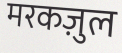
मरकज़ुल